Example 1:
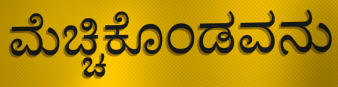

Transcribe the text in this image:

ಮೆಚ್ಚಿಕೊಂಡವನು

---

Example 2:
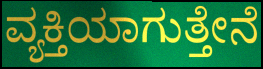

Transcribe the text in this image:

ವ್ಯಕ್ತಿಯಾಗುತ್ತೇನೆ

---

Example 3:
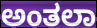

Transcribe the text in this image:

ಅಂತಲಾ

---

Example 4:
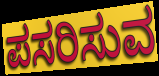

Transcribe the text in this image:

ಪಸರಿಸುವ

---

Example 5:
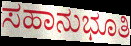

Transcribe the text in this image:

ಸಹಾನುಭೂತಿ